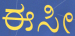
ಈಸೀ